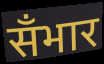
सँभार